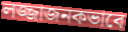
লজ্জাজনকভাবে